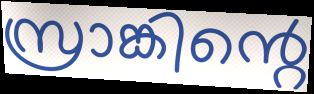
സ്രാങ്കിന്റെ